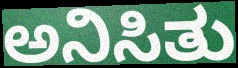
ಅನಿಸಿತು